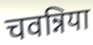
चवन्निया